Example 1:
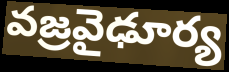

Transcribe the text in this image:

వజ్రవైఢూర్య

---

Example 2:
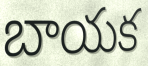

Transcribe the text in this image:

బాయక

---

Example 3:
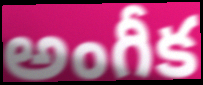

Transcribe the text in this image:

అంగీక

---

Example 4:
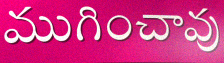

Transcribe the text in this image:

ముగించావు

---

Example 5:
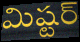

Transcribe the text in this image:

మిష్టర్